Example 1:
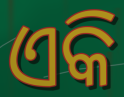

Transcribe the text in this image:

ଏକି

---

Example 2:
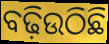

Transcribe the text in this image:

ବଢ଼ିଉଠିଛି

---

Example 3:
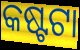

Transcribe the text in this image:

କଷ୍ଟଟା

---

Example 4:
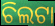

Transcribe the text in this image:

ଚିଲଟା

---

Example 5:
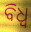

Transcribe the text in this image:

ବିଧ୍ଵ